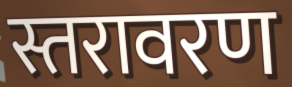
स्तरावरण